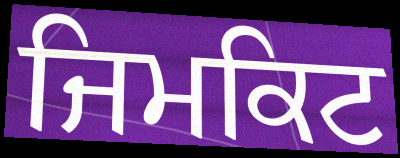
ਜਿਮਕਿਟ